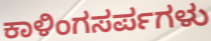
ಕಾಳಿಂಗಸರ್ಪಗಳು